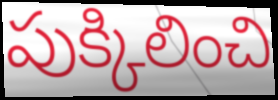
పుక్కిలించి